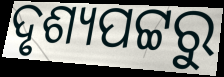
ଦୃଶ୍ୟପଟ୍ଟରୁ